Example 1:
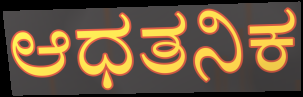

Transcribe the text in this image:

ಆಧತನಿಕ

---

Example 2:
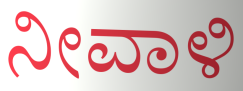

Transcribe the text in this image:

ನೀವಾಳಿ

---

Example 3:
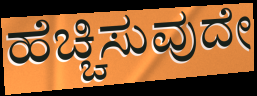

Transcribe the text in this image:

ಹೆಚ್ಚಿಸುವುದೇ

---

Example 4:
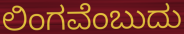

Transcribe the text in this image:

ಲಿಂಗವೆಂಬುದು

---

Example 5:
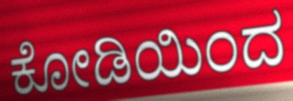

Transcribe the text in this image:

ಕೋಡಿಯಿಂದ